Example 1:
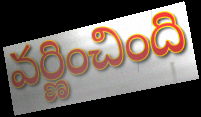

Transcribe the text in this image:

వర్ణించింది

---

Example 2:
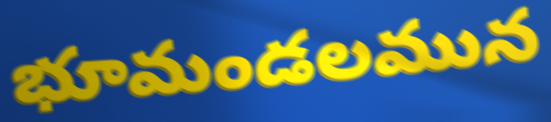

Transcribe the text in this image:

భూమండలమున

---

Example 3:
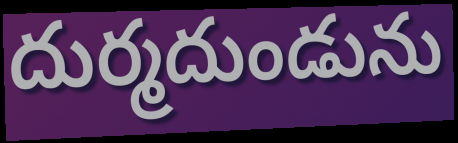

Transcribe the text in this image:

దుర్మదుండును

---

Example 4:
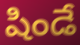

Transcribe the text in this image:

షిండే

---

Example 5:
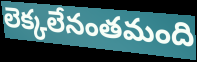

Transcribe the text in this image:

లెక్కలేనంతమంది